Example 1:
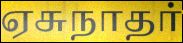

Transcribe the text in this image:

ஏசுநாதர்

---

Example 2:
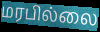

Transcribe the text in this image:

மரபில்லை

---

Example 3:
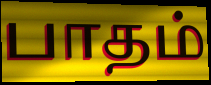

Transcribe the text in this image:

பாதம்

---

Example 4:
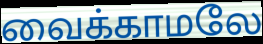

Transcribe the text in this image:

வைக்காமலே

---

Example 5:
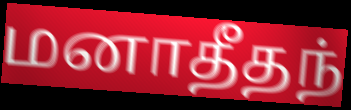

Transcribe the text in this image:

மனாதீதந்